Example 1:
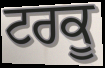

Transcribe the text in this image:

ਟਰਕੂ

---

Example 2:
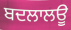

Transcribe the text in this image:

ਬਦਲਾਲਊ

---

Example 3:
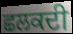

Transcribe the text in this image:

ਛਲਕਦੀ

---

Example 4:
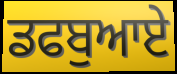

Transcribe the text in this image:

ਡਫਬੁਆਏ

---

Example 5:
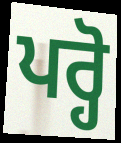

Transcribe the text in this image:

ਪਰ੍ਹੋ